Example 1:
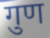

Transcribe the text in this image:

गुण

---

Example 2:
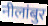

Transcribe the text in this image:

नीलांबुर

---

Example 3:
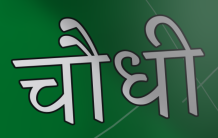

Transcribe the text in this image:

चौधी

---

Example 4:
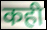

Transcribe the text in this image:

कही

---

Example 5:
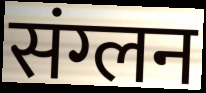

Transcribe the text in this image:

संग्लन